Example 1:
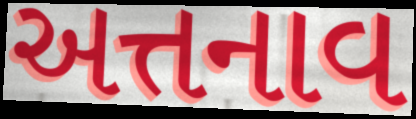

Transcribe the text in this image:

અત્તનાવ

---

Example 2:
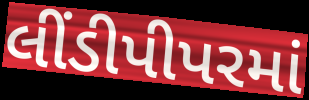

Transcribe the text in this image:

લીંડીપીપરમાં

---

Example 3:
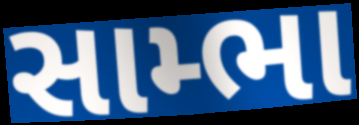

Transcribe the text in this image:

સામ્ભા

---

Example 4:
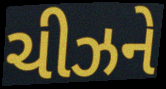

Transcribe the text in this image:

ચીઝને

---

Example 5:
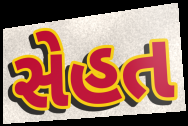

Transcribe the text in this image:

સેહત